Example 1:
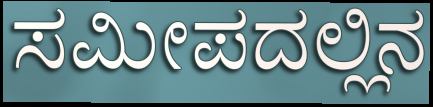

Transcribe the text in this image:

ಸಮೀಪದಲ್ಲಿನ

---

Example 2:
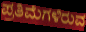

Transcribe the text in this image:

ಪ್ರತಿಮೆಗಳಿರುವ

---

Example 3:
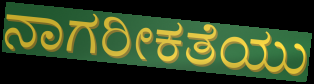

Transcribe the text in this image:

ನಾಗರೀಕತೆಯು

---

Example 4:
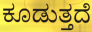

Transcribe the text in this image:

ಕೂಡುತ್ತದೆ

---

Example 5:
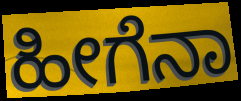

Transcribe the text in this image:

ಹೀಗೆನಾ